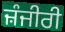
ਜ਼ੰਜੀਰੀ